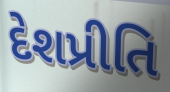
દેશપ્રીતિ